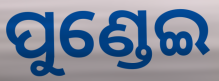
ପୁଣ୍ଡେଇ